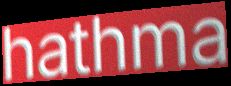
hathma